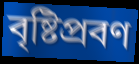
বৃষ্টিপ্রবণ